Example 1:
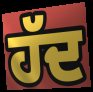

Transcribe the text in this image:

ਹੱਦ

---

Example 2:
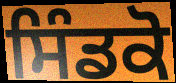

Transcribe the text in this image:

ਸਿੰਡਕੋ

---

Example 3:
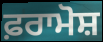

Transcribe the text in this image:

ਫ਼ਰਾਮੋਸ਼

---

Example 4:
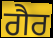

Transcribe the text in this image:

ਗੈਰ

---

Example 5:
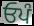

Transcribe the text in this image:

ਓਪੰ